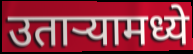
उतार्‍यामध्ये